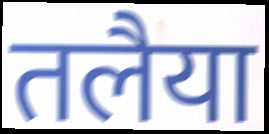
तलैया